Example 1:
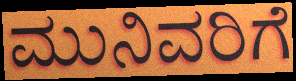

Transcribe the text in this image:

ಮುನಿವರಿಗೆ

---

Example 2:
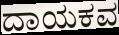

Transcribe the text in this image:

ದಾಯಕವ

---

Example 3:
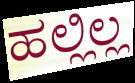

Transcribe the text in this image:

ಹಲ್ಲಿಲ್ಲ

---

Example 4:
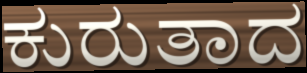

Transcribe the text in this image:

ಕುರುತಾದ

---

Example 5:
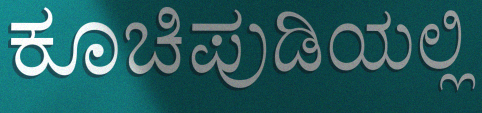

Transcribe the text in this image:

ಕೂಚಿಪುಡಿಯಲ್ಲಿ